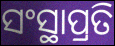
ସଂସ୍ଥାପ୍ରତି